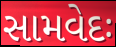
સામવેદઃ